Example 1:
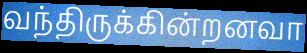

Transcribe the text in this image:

வந்திருக்கின்றனவா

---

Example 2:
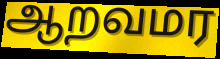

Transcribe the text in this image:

ஆறவமர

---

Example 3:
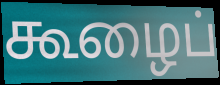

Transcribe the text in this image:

கூழைப்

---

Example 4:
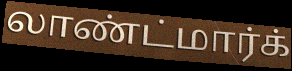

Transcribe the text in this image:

லாண்ட்மார்க்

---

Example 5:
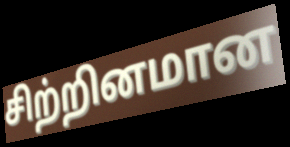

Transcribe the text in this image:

சிற்றினமான